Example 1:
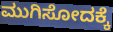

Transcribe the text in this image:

ಮುಗಿಸೋದಕ್ಕೆ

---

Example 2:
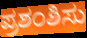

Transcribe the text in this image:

ಪ್ರಶಂಶಿಸು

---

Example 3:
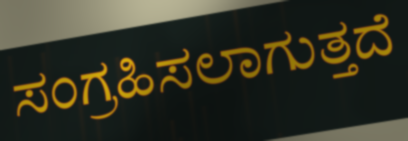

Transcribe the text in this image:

ಸಂಗ್ರಹಿಸಲಾಗುತ್ತದೆ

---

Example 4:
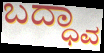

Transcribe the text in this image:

ಬದ್ಧ್ವಾ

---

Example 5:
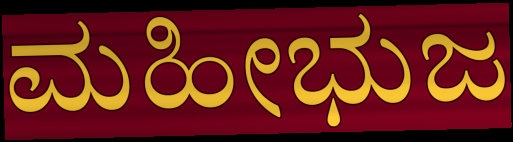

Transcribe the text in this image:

ಮಹೀಭುಜ